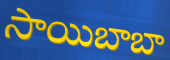
సాయిబాబా